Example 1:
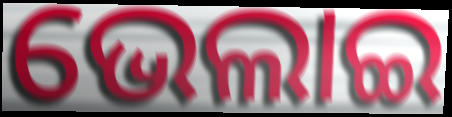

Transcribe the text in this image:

ଭେଲାଇ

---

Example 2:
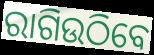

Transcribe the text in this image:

ରାଗିଉଠିବେ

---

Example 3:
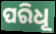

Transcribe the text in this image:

ପରିଧୂ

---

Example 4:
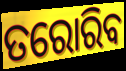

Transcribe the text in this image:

ତରୋରିବ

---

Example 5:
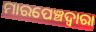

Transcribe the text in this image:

ମାରପେଞ୍ଚଦ୍ବାରା